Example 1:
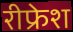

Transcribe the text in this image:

रीफ्रेश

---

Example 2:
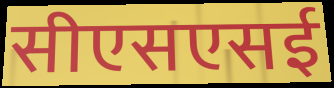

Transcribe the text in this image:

सीएसएसई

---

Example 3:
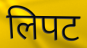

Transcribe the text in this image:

लिपट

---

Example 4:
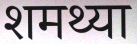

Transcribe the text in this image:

शमथ्या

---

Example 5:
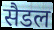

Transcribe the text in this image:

सैडल